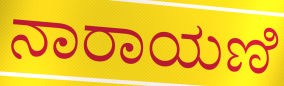
ನಾರಾಯಣಿ